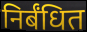
निर्बंधित